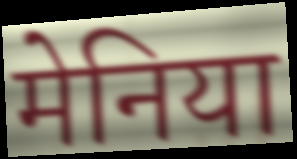
मेनिया